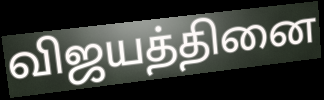
விஜயத்தினை